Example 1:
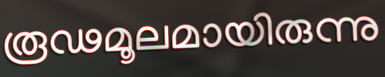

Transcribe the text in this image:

രൂഢമൂലമായിരുന്നു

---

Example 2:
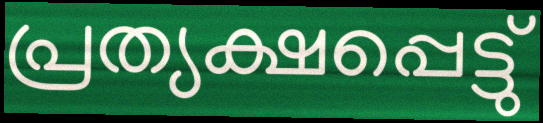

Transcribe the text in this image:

പ്രത്യക്ഷപ്പെട്ടു്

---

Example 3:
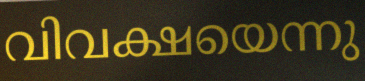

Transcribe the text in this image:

വിവക്ഷയെന്നു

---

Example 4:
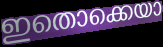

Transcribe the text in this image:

ഇതൊക്കെയാ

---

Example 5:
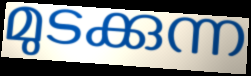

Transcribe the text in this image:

മുടക്കുന്ന